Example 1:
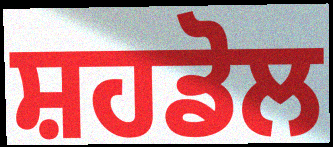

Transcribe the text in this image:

ਸ਼ਹਡੋਲ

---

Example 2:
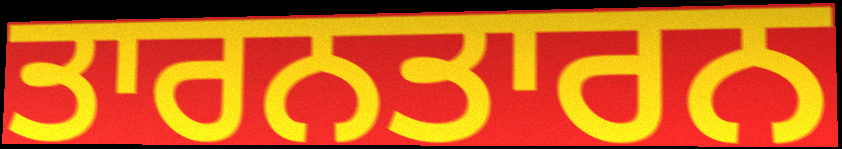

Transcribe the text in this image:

ਤਾਰਨਤਾਰਨ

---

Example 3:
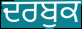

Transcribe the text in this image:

ਦਰਬੁਕ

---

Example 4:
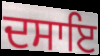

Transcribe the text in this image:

ਦਸਾਇ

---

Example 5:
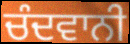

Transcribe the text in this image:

ਚੰਦਵਾਨੀ